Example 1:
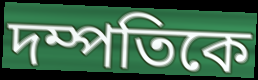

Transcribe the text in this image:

দম্পতিকে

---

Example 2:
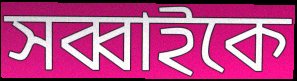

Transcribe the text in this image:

সব্বাইকে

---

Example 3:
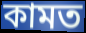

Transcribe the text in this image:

কামত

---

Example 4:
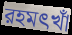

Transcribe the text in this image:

রহমৎখাঁ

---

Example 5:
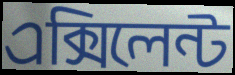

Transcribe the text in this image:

এক্সিলেন্ট